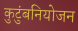
कुटुंबनियोजन